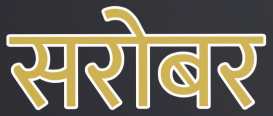
सरोबर